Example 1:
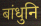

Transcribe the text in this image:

बांधुनि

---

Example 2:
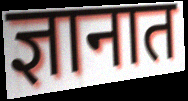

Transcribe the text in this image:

ज्ञानात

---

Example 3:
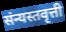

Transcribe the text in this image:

संन्यस्तवृत्ती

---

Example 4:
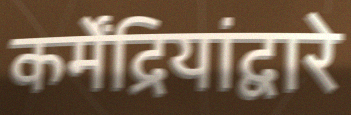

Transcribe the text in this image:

कर्मेंद्रियांद्वारे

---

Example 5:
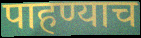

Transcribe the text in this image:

पाहण्याच